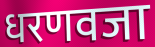
धरणवजा